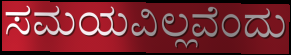
ಸಮಯವಿಲ್ಲವೆಂದು